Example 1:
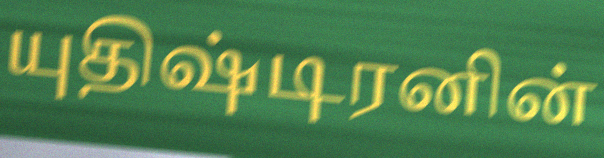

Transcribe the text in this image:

யுதிஷ்டிரனின்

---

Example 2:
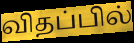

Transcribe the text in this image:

விதப்பில்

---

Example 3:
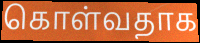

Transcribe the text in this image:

கொள்வதாக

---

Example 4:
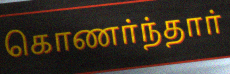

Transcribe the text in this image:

கொணர்ந்தார்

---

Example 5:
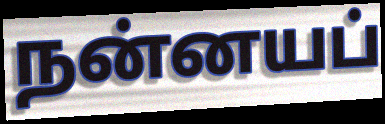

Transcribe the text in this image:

நன்னயப்